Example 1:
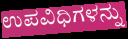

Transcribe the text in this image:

ಉಪವಿಧಿಗಳನ್ನು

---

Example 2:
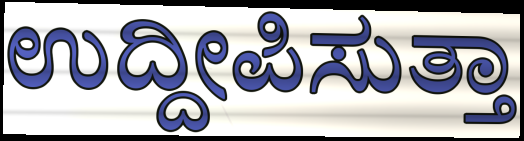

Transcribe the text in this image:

ಉದ್ದೀಪಿಸುತ್ತಾ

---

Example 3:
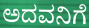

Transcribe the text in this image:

ಅದವನಿಗೆ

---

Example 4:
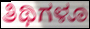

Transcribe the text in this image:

ತಿಥಿಗಳೂ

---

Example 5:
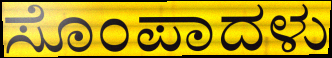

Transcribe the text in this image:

ಸೊಂಪಾದಳು